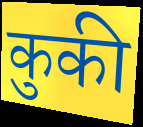
कुकी